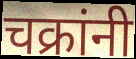
चक्रांनी